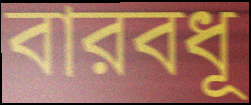
বারবধূ